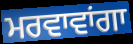
ਮਰਵਾਵਾਂਗਾ